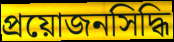
প্রয়োজনসিদ্ধি